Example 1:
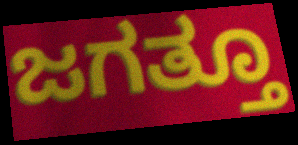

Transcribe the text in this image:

ಜಗತ್ತೂ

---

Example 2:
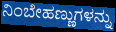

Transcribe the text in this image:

ನಿಂಬೇಹಣ್ಣುಗಳನ್ನು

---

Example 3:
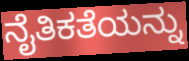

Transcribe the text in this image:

ನೈತಿಕತೆಯನ್ನು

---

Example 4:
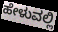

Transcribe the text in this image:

ಹೇಳುವಲ್ಲಿ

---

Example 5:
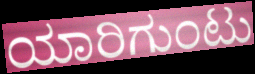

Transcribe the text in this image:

ಯಾರಿಗುಂಟು